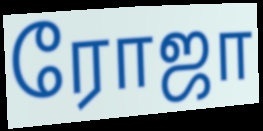
ரோஜா